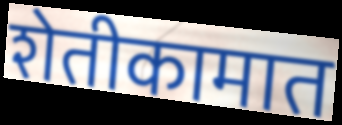
शेतीकामात